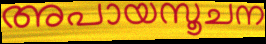
അപായസൂചന